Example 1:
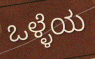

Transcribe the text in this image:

ಒಳ್ಳೆಯ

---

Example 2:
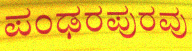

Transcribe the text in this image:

ಪಂಢರಪುರವು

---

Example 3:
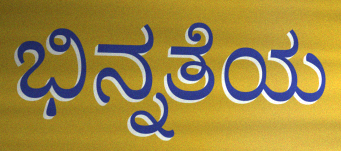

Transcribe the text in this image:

ಭಿನ್ನತೆಯ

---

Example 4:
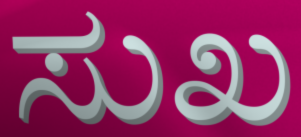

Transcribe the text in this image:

ಸುಖ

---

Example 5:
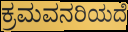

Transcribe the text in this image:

ಕ್ರಮವನರಿಯದೆ